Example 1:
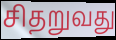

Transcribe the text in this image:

சிதறுவது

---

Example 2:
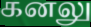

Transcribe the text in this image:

கனலு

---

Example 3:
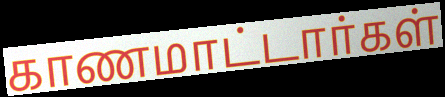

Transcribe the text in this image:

காணமாட்டார்கள்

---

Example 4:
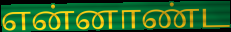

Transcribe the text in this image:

என்னாண்ட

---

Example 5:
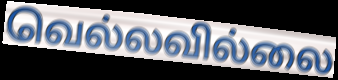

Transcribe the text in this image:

வெல்லவில்லை